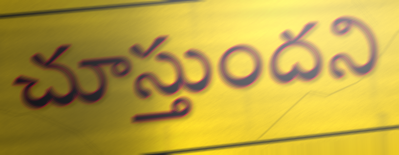
చూస్తుందని